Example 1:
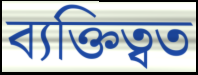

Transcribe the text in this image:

ব্যক্তিত্বত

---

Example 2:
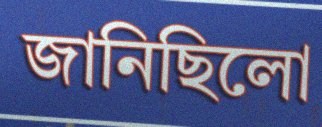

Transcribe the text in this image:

জানিছিলো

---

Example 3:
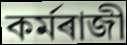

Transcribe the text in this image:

কৰ্মৰাজী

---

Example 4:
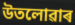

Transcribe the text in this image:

উতলোৱাৰ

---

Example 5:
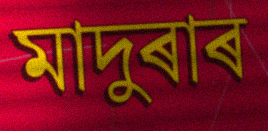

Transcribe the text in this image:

মাদুৰাৰ